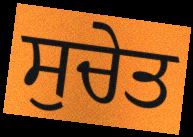
ਸੁਚੇਤ